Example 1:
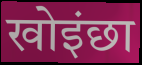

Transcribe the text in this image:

खोइंछा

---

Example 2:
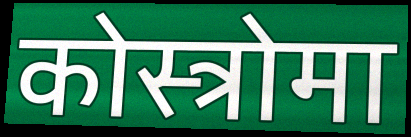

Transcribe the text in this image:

कोस्त्रोमा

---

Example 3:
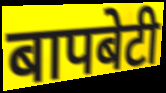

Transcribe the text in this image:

बापबेटी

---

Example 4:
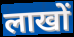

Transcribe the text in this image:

लाखों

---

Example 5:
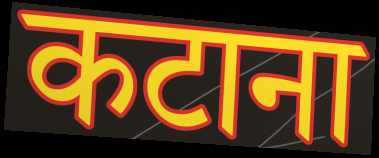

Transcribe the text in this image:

कटाना